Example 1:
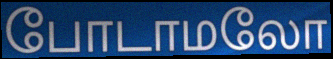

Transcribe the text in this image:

போடாமலோ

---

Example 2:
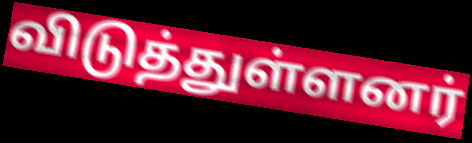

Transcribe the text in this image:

விடுத்துள்ளனர்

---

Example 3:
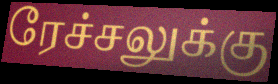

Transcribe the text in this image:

ரேச்சலுக்கு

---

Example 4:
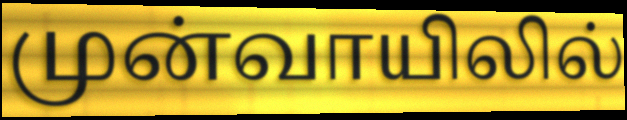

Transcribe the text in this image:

முன்வாயிலில்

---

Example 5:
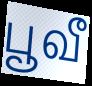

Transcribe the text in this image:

பூவீ